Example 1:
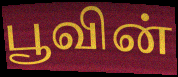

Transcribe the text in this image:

பூவின்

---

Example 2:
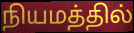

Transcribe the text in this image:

நியமத்தில்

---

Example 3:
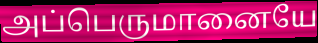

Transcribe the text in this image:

அப்பெருமானையே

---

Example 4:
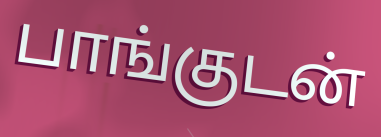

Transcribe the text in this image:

பாங்குடன்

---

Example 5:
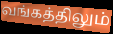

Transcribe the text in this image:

வங்கத்திலும்